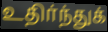
உதிர்ந்துக்